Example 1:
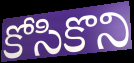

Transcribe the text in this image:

కోసికొని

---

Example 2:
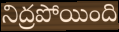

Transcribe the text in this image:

నిద్రపోయింది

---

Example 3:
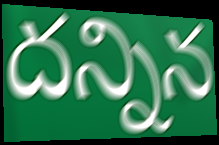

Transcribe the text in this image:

దన్నిన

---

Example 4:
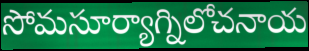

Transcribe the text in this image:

సోమసూర్యాగ్నిలోచనాయ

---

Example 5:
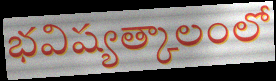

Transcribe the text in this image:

భవిష్యత్కాలంలో